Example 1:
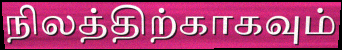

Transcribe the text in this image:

நிலத்திற்காகவும்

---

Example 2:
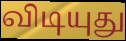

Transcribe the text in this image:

விடியுது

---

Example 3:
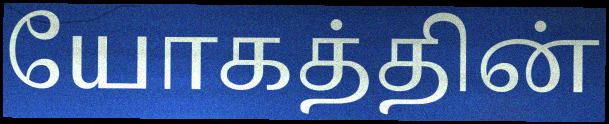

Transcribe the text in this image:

யோகத்தின்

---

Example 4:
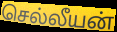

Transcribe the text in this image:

செல்லீயன்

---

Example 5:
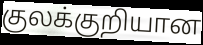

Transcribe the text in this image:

குலக்குறியான